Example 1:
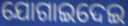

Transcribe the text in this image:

ଯୋଗାଇଦେଇ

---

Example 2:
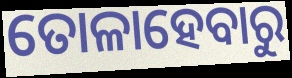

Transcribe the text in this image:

ତୋଳାହେବାରୁ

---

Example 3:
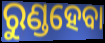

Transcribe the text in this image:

ରୁଣ୍ଡହେବା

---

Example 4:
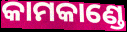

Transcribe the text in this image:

କାମକାଣ୍ଡେ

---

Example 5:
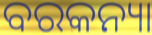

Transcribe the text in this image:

ବରକନ୍ୟା